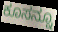
ಕೂಸನ್ನೂ